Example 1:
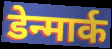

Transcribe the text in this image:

डेन्मार्क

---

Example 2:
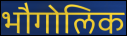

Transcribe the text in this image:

भौगोलिक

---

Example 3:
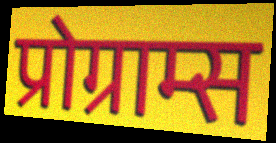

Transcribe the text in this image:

प्रोग्राम्स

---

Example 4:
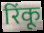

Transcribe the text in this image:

रिंकू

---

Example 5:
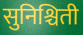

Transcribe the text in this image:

सुनिश्चिती